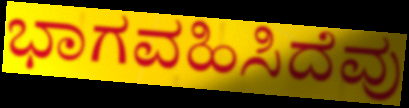
ಭಾಗವಹಿಸಿದೆವು